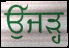
ਉੱਜੜ੍ਹ